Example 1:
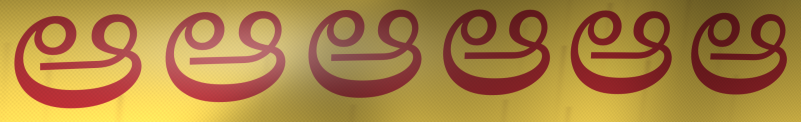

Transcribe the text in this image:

ఆఆఆఆఆఆ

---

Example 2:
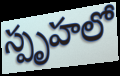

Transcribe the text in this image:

స్పృహలో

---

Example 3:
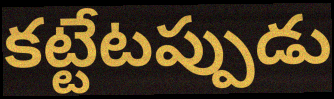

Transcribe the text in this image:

కట్టేటప్పుడు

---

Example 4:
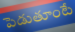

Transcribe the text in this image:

పెడుతూంటే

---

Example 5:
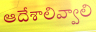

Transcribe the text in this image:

ఆదేశాలివ్వాలి